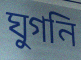
ঘুগনি